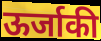
ऊर्जाकी